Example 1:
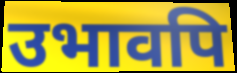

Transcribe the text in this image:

उभावपि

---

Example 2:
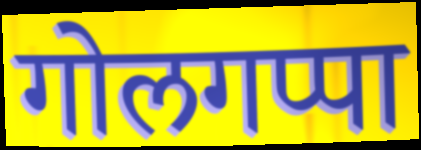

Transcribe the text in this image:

गोलगप्पा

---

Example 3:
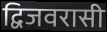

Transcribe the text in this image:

द्विजवरासी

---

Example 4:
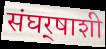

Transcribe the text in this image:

संघर्षाशी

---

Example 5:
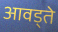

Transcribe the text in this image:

आवड्ते